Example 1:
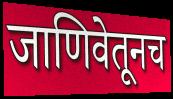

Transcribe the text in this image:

जाणिवेतूनच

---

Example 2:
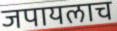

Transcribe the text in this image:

जपायलाच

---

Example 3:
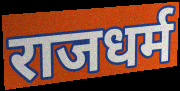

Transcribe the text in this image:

राजधर्म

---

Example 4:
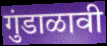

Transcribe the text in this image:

गुंडाळावी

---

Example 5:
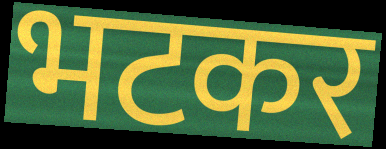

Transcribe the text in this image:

भटकर